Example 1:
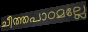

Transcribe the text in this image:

ചീത്തപാഠമല്ലേ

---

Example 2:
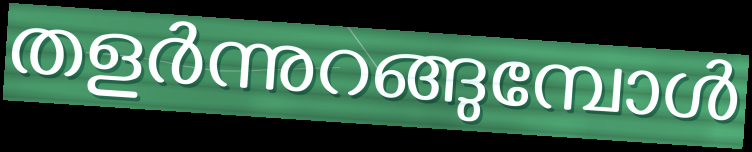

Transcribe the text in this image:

തളർന്നുറങ്ങുമ്പോൾ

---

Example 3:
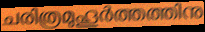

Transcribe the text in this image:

ചരിത്രമുഹൂർത്തത്തിനു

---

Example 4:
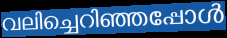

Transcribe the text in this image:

വലിച്ചെറിഞ്ഞപ്പോൾ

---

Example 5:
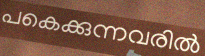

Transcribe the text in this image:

പകെക്കുന്നവരിൽ